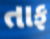
તાફ